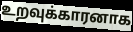
உறவுக்காரனாக